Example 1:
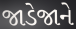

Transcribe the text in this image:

જાડેજાને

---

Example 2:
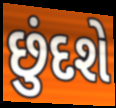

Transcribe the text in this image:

છુંદશે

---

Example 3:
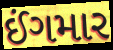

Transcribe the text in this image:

ઈંગમાર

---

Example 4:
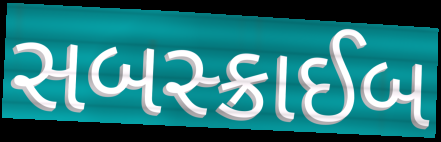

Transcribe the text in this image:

સબસ્ક્રાઈબ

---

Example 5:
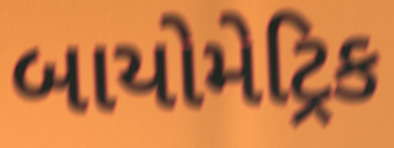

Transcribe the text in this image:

બાયોમેટ્રિક